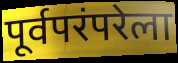
पूर्वपरंपरेला